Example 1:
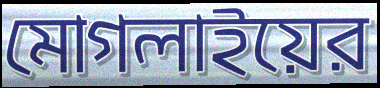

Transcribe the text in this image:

মোগলাইয়ের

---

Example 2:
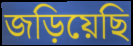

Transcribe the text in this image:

জড়িয়েছি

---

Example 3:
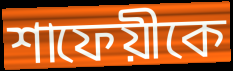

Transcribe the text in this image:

শাফেয়ীকে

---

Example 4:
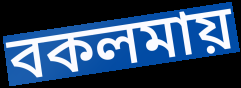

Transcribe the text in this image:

বকলমায়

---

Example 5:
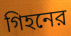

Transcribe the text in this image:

গিহনের